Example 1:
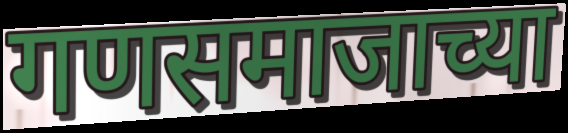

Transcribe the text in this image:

गणसमाजाच्या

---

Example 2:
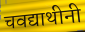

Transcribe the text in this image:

चवद्याथीनी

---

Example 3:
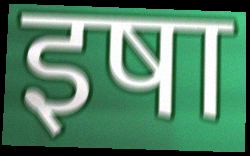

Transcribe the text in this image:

इषा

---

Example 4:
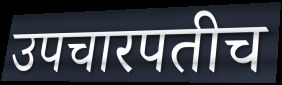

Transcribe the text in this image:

उपचारपतीच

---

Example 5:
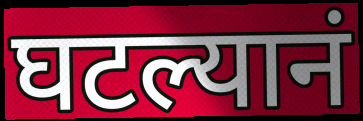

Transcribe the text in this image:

घटल्यानं